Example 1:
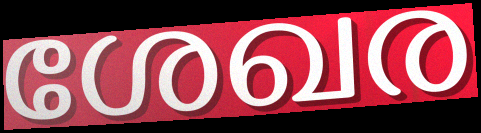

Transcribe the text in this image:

ശേഖര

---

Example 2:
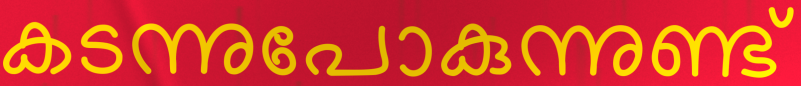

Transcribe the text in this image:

കടന്നുപോകുന്നുണ്ട്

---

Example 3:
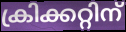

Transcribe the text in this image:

ക്രിക്കറ്റിന്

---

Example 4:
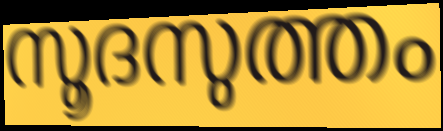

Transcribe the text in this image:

സൂദസുത്തം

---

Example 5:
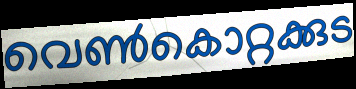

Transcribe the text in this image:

വെൺകൊറ്റക്കുട